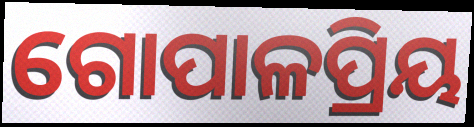
ଗୋପାଳପ୍ରିୟ